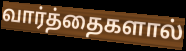
வார்த்தைகளால்